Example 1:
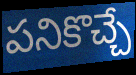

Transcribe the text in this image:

పనికొచ్చే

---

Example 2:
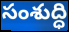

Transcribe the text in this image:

సంశుద్ధి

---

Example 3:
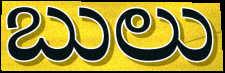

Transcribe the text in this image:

బులు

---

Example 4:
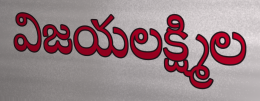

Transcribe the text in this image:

విజయలక్ష్మిల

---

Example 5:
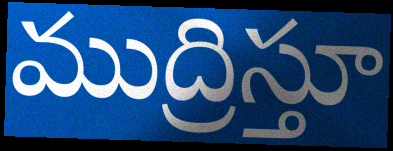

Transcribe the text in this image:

ముద్రిస్తూ